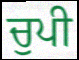
ਚੁਪੀ